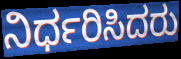
ನಿರ್ಧರಿಸಿದರು